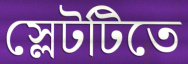
স্লেটটিতে